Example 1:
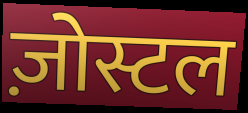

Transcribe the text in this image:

ज़ोस्टल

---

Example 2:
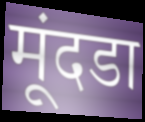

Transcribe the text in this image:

मूंदडा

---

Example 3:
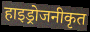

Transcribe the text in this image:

हाइड्रोजनीकृत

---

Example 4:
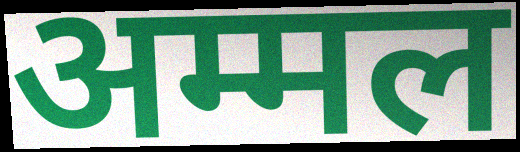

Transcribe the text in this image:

अम्मल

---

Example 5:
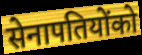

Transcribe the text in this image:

सेनापतियोंको